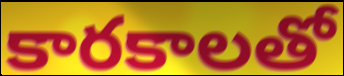
కారకాలతో